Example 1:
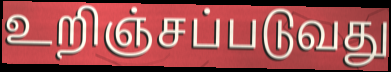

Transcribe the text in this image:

உறிஞ்சப்படுவது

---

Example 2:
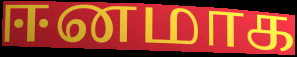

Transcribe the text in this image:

ஈனமாக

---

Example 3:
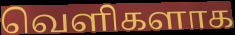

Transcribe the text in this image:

வெளிகளாக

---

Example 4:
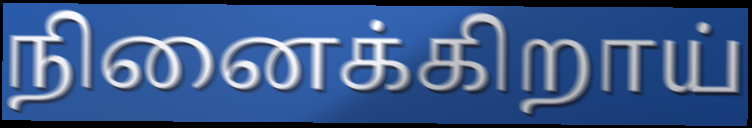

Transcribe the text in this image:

நினைக்கிறாய்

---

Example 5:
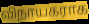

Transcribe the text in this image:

விநாயகராக